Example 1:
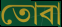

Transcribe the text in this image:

তোবা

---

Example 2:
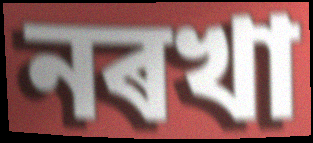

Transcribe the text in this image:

নৰখা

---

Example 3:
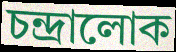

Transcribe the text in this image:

চন্দ্ৰালোক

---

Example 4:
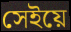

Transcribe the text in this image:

সেইয়ে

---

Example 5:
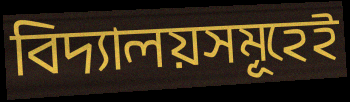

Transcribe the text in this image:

বিদ্যালয়সমূহেই